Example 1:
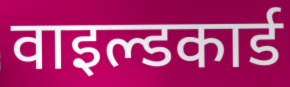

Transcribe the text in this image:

वाइल्डकार्ड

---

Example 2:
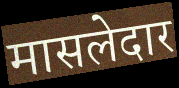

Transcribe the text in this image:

मासलेदार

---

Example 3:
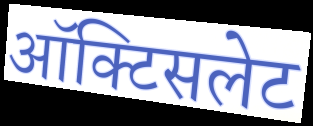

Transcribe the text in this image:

ऑक्टिसलेट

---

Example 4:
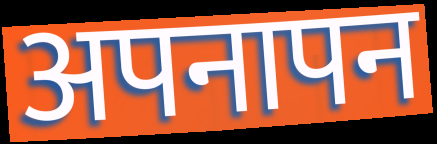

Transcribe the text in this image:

अपनापन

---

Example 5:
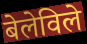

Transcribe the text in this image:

बेलेविले